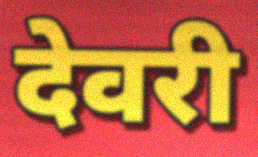
देवरी